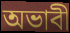
অভাবী